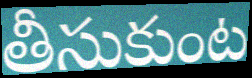
తీసుకుంట